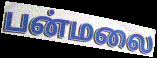
பன்மலை